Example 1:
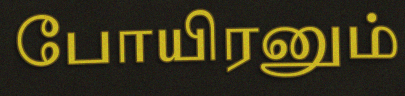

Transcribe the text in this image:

போயிரனும்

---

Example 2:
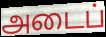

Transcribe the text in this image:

அடைப்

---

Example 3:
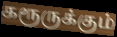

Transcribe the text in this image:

கரூருக்கும்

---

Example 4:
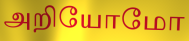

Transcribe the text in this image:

அறியோமோ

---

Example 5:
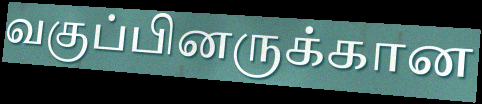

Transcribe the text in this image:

வகுப்பினருக்கான